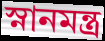
স্নানমন্ত্র